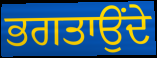
ਭਗਤਾਉਂਦੇ